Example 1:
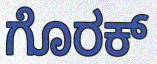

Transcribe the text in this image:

ಗೊರಕ್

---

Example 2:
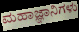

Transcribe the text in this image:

ಮಹಾಜ್ಞಾನಿಗಳು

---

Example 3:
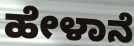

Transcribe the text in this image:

ಹೇಳಾನೆ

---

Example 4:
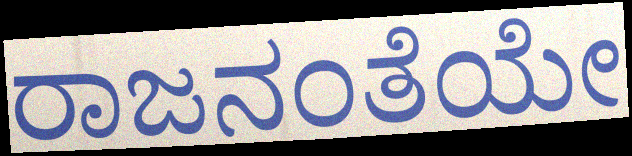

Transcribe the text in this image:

ರಾಜನಂತೆಯೇ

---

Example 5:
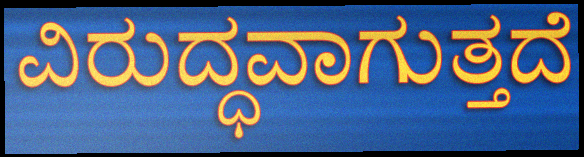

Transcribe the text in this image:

ವಿರುದ್ಧವಾಗುತ್ತದೆ